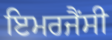
ਇਮਰਜੈਂਸੀ